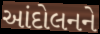
આંદોલનને